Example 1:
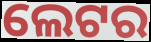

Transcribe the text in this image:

ଲେଟର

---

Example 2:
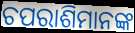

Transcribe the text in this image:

ଚପରାଶିମାନଙ୍କ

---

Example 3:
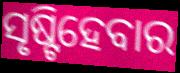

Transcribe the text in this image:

ସୃଷ୍ଟିହେବାର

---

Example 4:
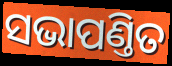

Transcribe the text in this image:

ସଭାପଣ୍ତିତ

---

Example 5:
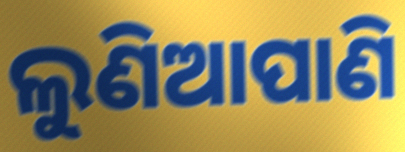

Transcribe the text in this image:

ଲୁଣିଆପାଣି